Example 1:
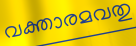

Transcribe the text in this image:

വക്താരമവതു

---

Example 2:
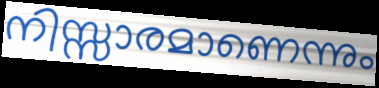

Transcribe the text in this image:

നിസ്സാരമാണെന്നും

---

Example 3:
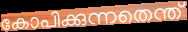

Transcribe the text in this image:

കോപിക്കുന്നതെന്ത്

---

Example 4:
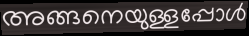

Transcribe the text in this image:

അങ്ങനെയുള്ളപ്പോൾ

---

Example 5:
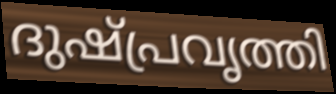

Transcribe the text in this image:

ദുഷ്പ്രവൃത്തി